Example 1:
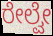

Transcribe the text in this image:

ರೇಲ್ವೇ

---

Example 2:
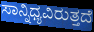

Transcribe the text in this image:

ಸಾನ್ನಿಧ್ಯವಿರುತ್ತದೆ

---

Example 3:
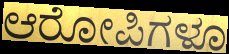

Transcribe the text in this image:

ಆರೋಪಿಗಳೂ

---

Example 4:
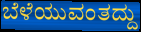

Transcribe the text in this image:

ಬೆಳೆಯುವಂತದ್ದು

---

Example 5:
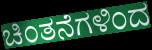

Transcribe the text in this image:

ಚಿಂತನೆಗಳಿಂದ